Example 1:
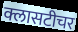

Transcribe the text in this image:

क्लासटीचर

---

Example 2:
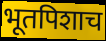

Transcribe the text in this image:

भूतपिशाच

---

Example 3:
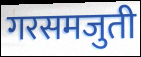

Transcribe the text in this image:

गरसमजुती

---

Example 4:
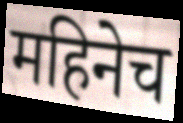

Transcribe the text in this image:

महिनेच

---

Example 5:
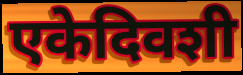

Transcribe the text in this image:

एकेदिवशी